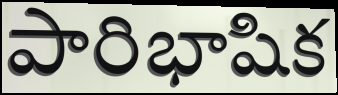
పారిభాషిక